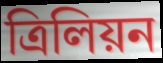
ত্ৰিলিয়ন